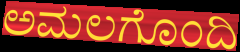
ಅಮಲಗೊಂದಿ